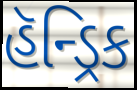
હૅન્ડ્રિક